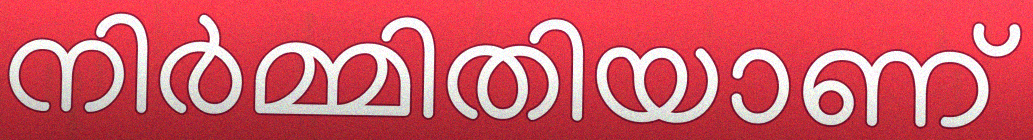
നിർമ്മിതിയാണ്